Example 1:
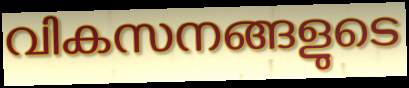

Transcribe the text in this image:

വികസനങ്ങളുടെ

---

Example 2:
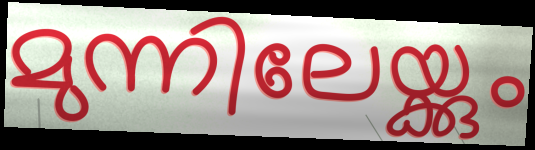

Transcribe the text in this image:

മുന്നിലേയ്ക്കും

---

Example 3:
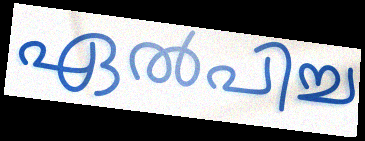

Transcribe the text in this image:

ഏൽപിച്ച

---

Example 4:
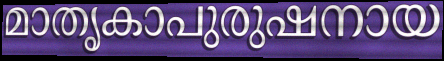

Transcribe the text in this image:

മാതൃകാപുരുഷനായ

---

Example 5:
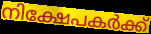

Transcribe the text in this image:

നിക്ഷേപകർക്ക്